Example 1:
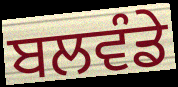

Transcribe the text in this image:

ਬਲਵੰਡੇ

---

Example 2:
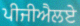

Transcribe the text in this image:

ਪੀਜੀਐਲਏ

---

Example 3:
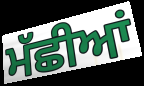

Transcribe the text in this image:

ਮੱਛੀਆਂ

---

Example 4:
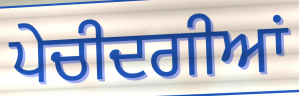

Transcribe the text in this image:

ਪੇਚੀਦਗੀਆਂ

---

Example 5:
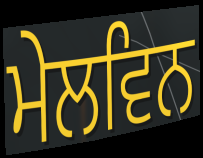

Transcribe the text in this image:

ਮੇਲਵਿਨ